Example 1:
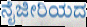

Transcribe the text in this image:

ನೈಜೀರಿಯದ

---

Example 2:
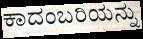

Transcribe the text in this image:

ಕಾದಂಬರಿಯನ್ನು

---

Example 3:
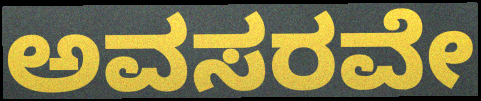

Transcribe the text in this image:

ಅವಸರವೇ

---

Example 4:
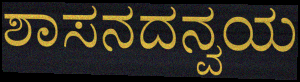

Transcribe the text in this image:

ಶಾಸನದನ್ವಯ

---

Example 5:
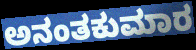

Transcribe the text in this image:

ಅನಂತಕುಮಾರ